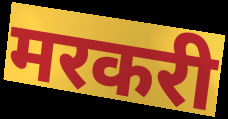
मरकरी